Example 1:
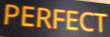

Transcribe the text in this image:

PERFECT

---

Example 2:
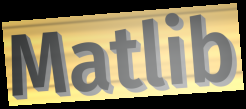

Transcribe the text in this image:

Matlib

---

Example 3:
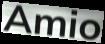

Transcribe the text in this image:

Amio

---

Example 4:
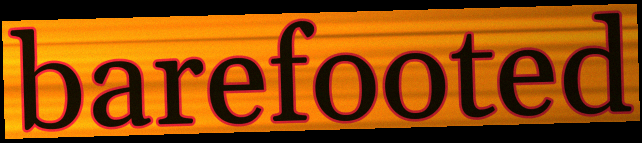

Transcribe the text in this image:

barefooted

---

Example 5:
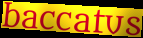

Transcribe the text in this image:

baccatus